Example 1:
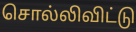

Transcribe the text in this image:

சொல்லிவிட்டு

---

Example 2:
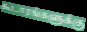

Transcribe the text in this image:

கூடாரங்களுக்கு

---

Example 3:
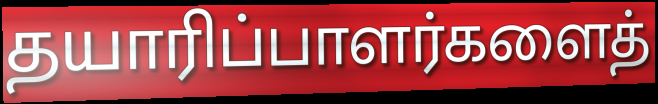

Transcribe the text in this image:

தயாரிப்பாளர்களைத்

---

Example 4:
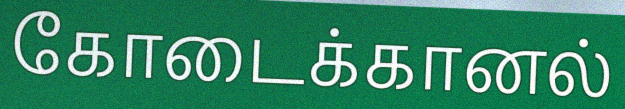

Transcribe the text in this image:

கோடைக்கானல்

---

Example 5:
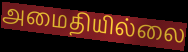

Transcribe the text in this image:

அமைதியில்லை